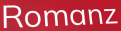
Romanz